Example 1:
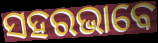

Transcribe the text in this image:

ସହରଭାବେ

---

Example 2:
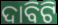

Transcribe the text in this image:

ଦାବିଟି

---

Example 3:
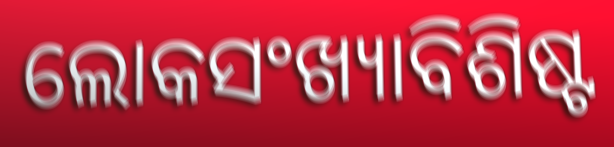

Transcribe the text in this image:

ଲୋକସଂଖ୍ୟାବିଶିଷ୍ଟ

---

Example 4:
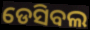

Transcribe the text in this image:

ଡେସିବଲ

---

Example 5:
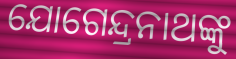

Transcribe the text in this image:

ଯୋଗେନ୍ଦ୍ରନାଥଙ୍କୁ